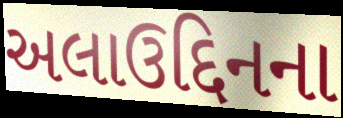
અલાઉદ્દિનના